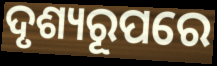
ଦୃଶ୍ୟରୂପରେ